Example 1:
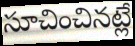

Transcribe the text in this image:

సూచించినట్లే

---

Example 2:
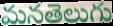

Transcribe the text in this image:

మనతెలుగు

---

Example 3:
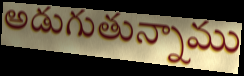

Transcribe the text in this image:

అడుగుతున్నాము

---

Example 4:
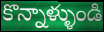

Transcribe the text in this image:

కొన్నాళ్ళుండి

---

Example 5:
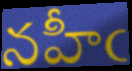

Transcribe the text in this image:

నహీఁ